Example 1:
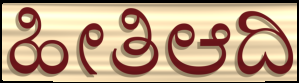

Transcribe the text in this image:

ಹೀತಿಆದಿ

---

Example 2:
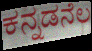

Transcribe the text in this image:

ಕನ್ನಡನೆಲ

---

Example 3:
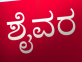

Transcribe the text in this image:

ಶೈವರ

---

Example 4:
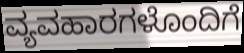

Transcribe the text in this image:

ವ್ಯವಹಾರಗಳೊಂದಿಗೆ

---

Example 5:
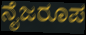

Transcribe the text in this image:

ನೈಜರೂಪ